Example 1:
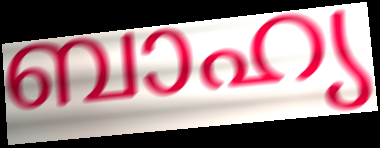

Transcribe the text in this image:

ബാഹ്യ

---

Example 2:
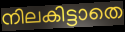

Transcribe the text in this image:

നിലകിട്ടാതെ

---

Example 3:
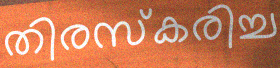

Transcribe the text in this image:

തിരസ്കരിച്ച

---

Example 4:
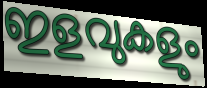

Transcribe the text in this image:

ഇളവുകളും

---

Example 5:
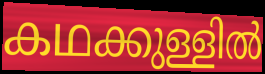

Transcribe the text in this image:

കഥക്കുള്ളിൽ